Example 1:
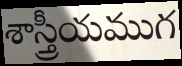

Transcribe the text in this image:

శాస్త్రీయముగ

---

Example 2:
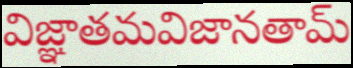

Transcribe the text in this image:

విజ్ఞాతమవిజానతామ్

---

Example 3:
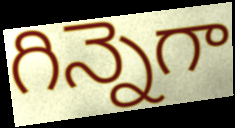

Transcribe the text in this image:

గిన్నెగా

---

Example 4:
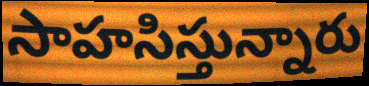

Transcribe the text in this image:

సాహసిస్తున్నారు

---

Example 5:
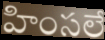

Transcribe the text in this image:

హింసలే